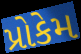
પ્રોકેમ